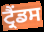
ਟ੍ਰੈਂਡਸ